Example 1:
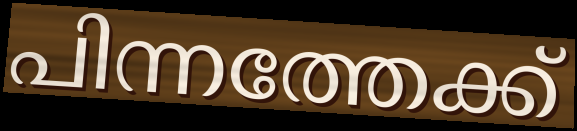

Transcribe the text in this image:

പിന്നത്തേക്ക്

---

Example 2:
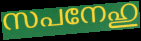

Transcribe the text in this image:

സപനേഹു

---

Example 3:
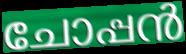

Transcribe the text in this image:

ചോപ്പൻ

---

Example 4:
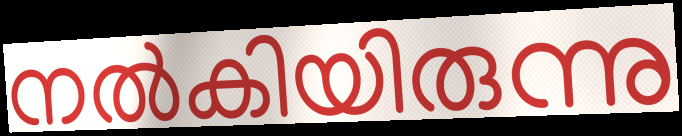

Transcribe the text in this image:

നൽകിയിരുന്നു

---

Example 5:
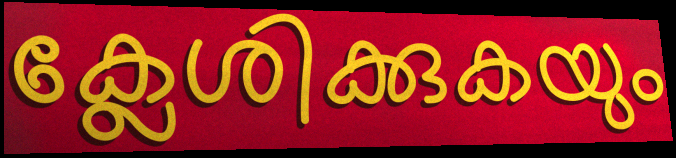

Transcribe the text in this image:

ക്ലേശിക്കുകയും